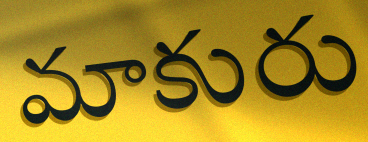
మాకురు